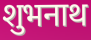
शुभनाथ